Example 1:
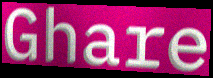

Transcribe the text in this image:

Ghare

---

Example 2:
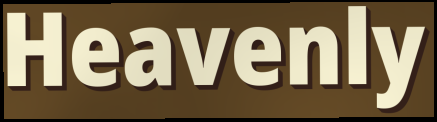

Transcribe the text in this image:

Heavenly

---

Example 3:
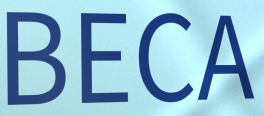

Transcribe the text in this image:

BECA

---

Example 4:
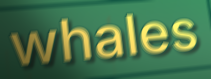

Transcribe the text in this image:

whales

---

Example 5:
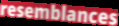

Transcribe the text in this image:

resemblances